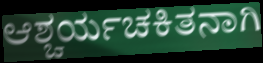
ಆಶ್ಚರ್ಯಚಕಿತನಾಗಿ